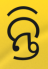
ନ୍ତି